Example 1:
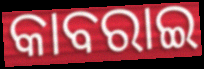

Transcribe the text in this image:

କାବରାଇ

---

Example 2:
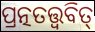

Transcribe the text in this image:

ପ୍ରତ୍ନତତ୍ତ୍ଵବିତ୍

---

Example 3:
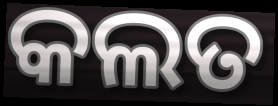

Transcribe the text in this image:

କଲତ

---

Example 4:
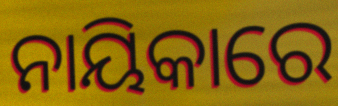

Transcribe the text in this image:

ନାୟିକାରେ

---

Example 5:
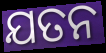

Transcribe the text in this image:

ଯତନ